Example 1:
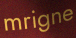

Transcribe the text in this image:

mrigne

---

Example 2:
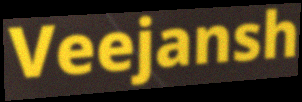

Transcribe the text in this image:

Veejansh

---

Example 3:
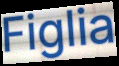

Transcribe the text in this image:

Figlia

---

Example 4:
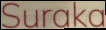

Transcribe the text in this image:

Suraka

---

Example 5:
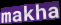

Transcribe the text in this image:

makha